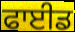
ਫਾਈਡ